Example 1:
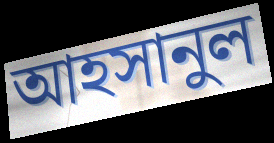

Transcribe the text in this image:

আহসানুল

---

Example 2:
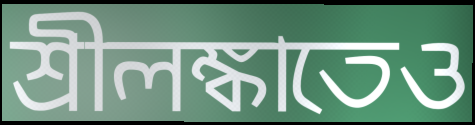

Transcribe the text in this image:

শ্রীলঙ্কাতেও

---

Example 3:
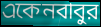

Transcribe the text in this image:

একেনবাবুর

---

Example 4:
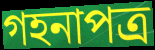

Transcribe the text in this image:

গহনাপত্র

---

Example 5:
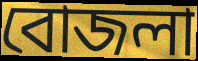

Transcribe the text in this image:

বোজলা